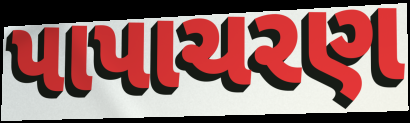
પાપાચરણ